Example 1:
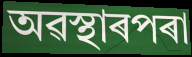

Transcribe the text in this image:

অৱস্থাৰপৰা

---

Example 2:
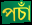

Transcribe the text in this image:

পচাঁ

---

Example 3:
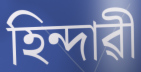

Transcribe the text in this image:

হিন্দাৱী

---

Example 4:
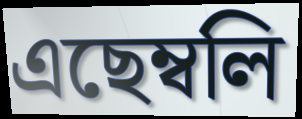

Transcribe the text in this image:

এছেম্বলি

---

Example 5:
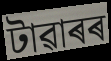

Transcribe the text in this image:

টাৱাৰৰ